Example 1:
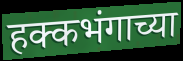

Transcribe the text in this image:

हक्कभंगाच्या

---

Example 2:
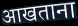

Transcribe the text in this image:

आखताना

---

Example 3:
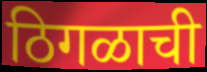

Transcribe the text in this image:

ठिगळाची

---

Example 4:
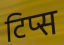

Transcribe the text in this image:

टिप्स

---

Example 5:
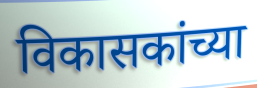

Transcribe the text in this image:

विकासकांच्या